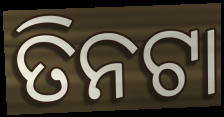
ତିନଟା